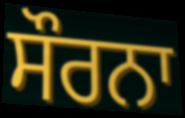
ਸੌਰਨਾ